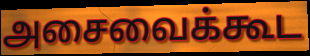
அசைவைக்கூட